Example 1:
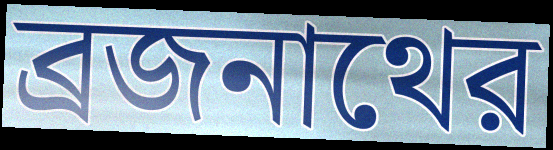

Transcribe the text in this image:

ব্রজনাথের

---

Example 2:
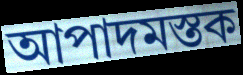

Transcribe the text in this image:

আপাদমস্তক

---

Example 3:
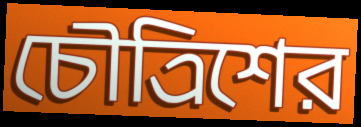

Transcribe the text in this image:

চৌত্রিশের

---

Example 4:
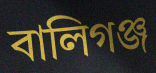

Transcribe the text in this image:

বালিগঞ্জ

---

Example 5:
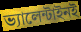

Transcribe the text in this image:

ভ্যালেন্টাইনই